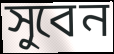
সুবেন